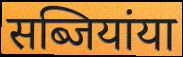
सब्जियांया